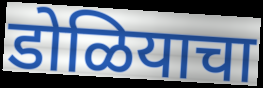
डोळियाचा